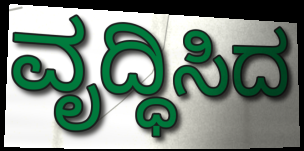
ವೃದ್ಧಿಸಿದ